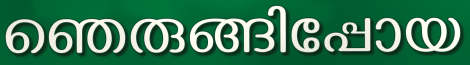
ഞെരുങ്ങിപ്പോയ